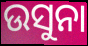
ଉସୁନା